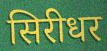
सिरीधर